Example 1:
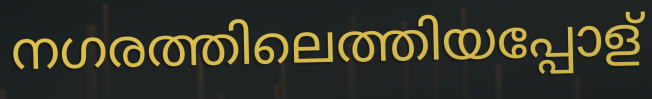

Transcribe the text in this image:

നഗരത്തിലെത്തിയപ്പോള്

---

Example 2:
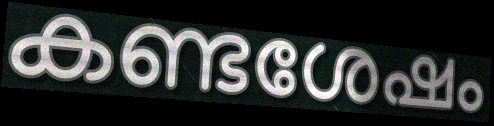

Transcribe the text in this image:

കണ്ടശേഷം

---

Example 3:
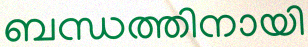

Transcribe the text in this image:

ബന്ധത്തിനായി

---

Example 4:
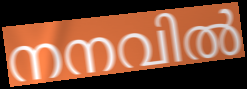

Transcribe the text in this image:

നനവിൽ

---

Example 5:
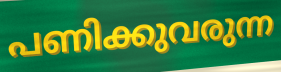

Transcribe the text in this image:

പണിക്കുവരുന്ന